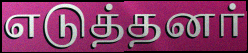
எடுத்தனர்